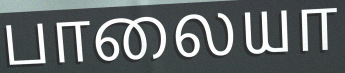
பாலையா